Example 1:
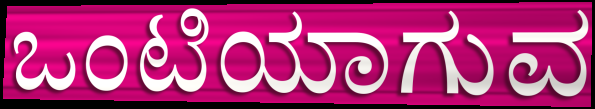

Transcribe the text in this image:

ಒಂಟಿಯಾಗುವ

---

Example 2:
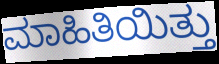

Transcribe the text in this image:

ಮಾಹಿತಿಯಿತ್ತು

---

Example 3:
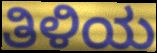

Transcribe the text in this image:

ತಿಳಿಯ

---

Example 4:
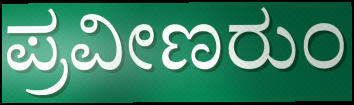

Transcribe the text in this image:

ಪ್ರವೀಣರುಂ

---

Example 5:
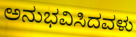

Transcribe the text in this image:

ಅನುಭವಿಸಿದವಳು